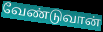
வேண்டுவான்